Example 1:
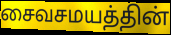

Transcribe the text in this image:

சைவசமயத்தின்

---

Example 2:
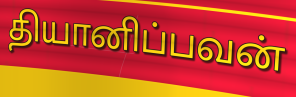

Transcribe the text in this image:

தியானிப்பவன்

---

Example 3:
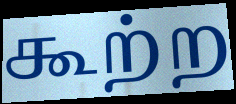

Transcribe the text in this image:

கூற்ற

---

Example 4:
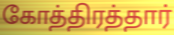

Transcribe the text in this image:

கோத்திரத்தார்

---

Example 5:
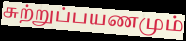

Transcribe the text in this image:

சுற்றுப்பயணமும்